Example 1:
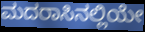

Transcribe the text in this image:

ಮದರಾಸಿನಲ್ಲಿಯೇ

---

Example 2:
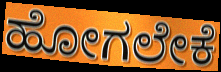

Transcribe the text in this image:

ಹೋಗಲೇಕೆ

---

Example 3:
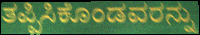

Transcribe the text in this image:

ತಪ್ಪಿಸಿಕೊಂಡವರನ್ನು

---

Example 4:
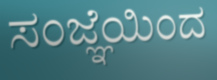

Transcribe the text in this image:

ಸಂಜ್ಞೆಯಿಂದ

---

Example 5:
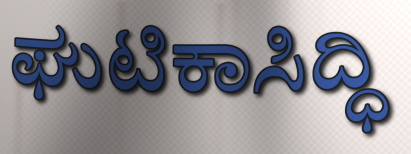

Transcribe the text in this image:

ಘುಟಿಕಾಸಿದ್ಧಿ